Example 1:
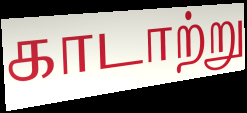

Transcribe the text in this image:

காடாற்று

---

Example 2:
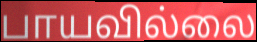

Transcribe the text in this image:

பாயவில்லை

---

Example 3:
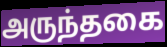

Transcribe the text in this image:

அருந்தகை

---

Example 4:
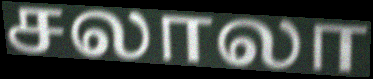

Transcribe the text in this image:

சலாலா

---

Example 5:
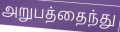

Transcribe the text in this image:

அறுபத்தைந்து